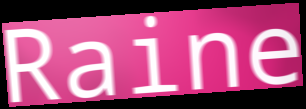
Raine